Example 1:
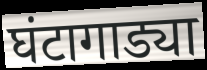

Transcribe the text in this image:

घंटागाड्या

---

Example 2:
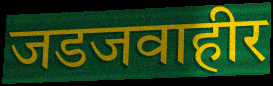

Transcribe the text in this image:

जडजवाहीर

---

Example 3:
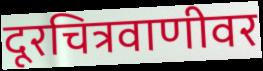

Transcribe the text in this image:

दूरचित्रवाणीवर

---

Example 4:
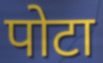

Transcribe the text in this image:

पोटा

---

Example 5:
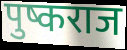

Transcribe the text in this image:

पुष्कराज